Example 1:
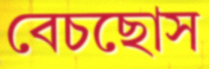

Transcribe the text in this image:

বেচছোস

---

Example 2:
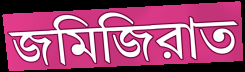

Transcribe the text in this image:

জমিজিরাত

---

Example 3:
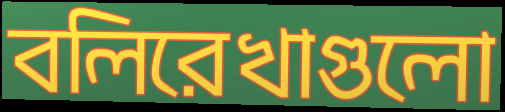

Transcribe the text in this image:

বলিরেখাগুলো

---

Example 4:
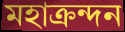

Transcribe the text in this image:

মহাক্রন্দন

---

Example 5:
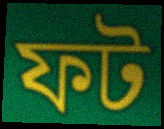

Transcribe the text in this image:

ফট